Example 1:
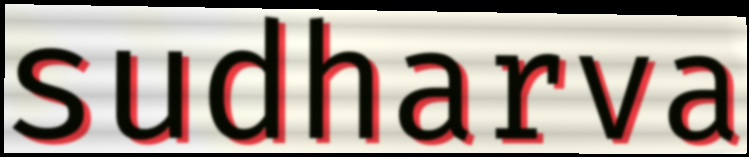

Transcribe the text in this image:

sudharva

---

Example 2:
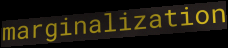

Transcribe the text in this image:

marginalization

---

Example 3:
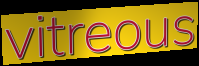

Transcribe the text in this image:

vitreous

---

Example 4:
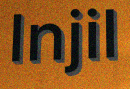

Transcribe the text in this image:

Injil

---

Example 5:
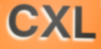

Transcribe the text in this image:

CXL